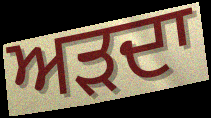
ਅੜਦਾ